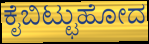
ಕೈಬಿಟ್ಟುಹೋದ